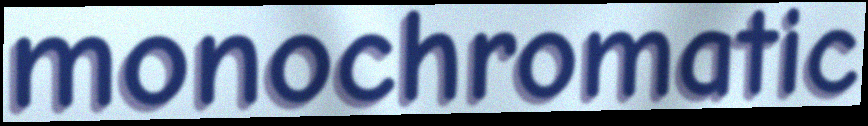
monochromatic